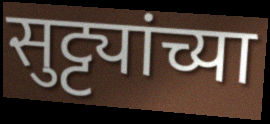
सुट्ट्यांच्या